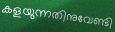
കളയുന്നതിനുവേണ്ടി